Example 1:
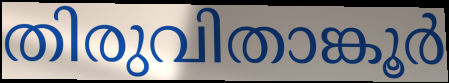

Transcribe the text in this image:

തിരുവിതാങ്കൂർ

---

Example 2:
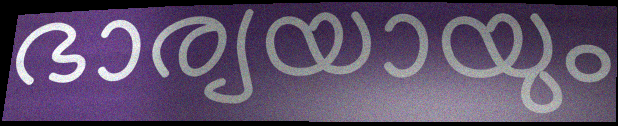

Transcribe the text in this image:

ഭാര്യയായും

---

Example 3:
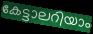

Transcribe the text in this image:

കേട്ടാലറിയാം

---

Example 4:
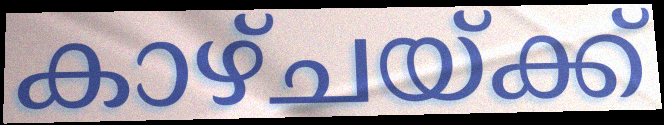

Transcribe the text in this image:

കാഴ്ചയ്ക്ക്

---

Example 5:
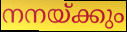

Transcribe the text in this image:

നനയ്ക്കും